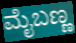
ಮೈಬಣ್ಣ